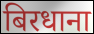
बिरधाना